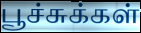
பூச்சுக்கள்